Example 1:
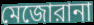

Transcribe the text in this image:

মেজোরানা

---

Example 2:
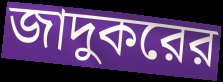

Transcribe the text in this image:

জাদুকরের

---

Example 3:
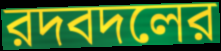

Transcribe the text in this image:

রদবদলের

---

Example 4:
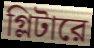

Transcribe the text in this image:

গ্লিটারে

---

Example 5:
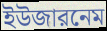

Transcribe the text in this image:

ইউজারনেম